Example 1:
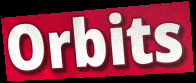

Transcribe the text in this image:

Orbits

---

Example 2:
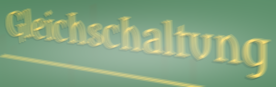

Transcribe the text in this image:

Gleichschaltung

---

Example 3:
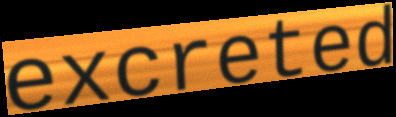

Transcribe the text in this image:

excreted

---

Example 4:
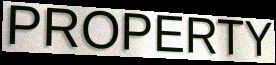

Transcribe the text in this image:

PROPERTY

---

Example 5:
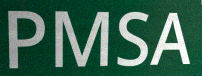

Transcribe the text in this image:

PMSA